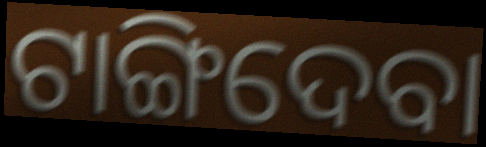
ଟାଙ୍ଗିଦେବା